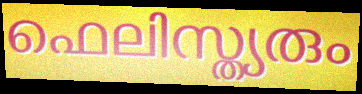
ഫെലിസ്ത്യരും